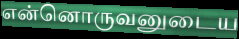
என்னொருவனுடைய